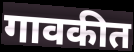
गावकीत